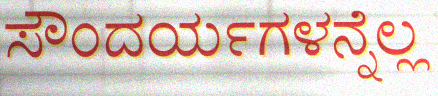
ಸೌಂದರ್ಯಗಳನ್ನೆಲ್ಲ